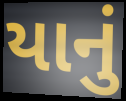
યાનું